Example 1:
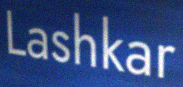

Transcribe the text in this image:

Lashkar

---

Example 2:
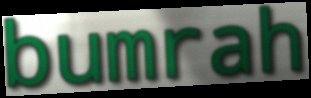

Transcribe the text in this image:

bumrah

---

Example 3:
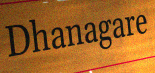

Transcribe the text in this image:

Dhanagare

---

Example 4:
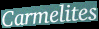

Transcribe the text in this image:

Carmelites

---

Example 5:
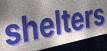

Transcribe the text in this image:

shelters